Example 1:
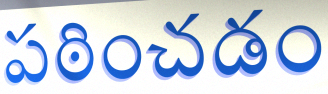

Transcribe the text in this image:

పఠించడం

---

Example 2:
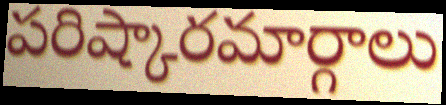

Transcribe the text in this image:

పరిష్కారమార్గాలు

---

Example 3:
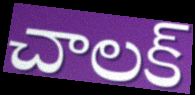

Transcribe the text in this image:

చాలక్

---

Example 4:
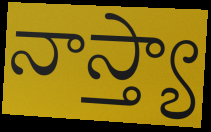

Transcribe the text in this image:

నాస్త్యా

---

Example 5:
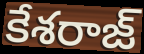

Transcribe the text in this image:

కేశరాజ్